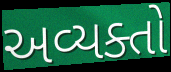
અવ્યક્તો